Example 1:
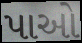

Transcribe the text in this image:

પાઓ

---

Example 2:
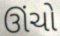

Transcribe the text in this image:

ઊંચો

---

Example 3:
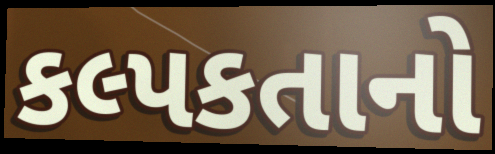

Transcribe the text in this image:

કલ્પકતાનો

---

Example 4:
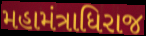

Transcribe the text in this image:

મહામંત્રાધિરાજ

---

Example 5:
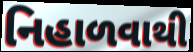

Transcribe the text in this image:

નિહાળવાથી